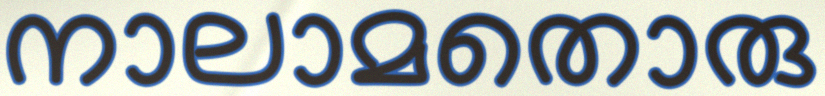
നാലാമതൊരു